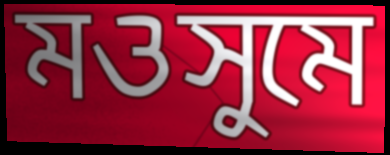
মওসুমে